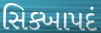
સિક્ખાપદં